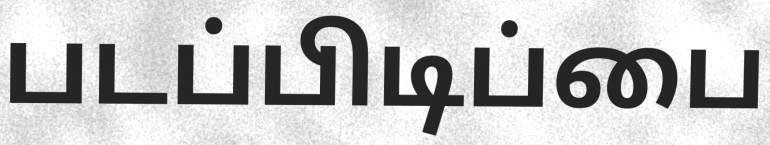
படப்பிடிப்பை